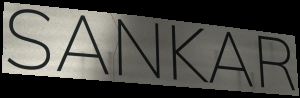
SANKAR